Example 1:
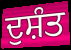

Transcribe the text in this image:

ਦੁਸ਼ੰਤ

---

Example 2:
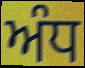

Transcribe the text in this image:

ਅੰਧ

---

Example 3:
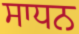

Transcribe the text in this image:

ਸਾਧਨ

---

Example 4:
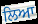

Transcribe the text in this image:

ਲਿਆ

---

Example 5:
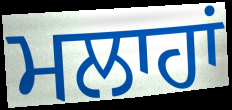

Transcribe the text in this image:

ਮਲਾਹਾਂ